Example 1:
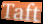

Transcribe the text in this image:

Taft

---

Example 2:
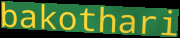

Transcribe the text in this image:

bakothari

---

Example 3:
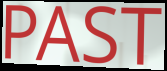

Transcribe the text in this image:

PAST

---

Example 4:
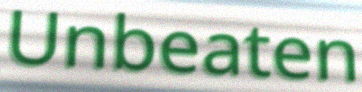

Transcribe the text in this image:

Unbeaten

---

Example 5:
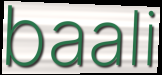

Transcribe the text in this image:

baali